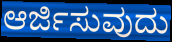
ಆರ್ಜಿಸುವುದು